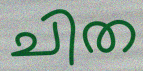
ചിത